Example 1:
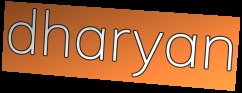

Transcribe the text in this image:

dharyan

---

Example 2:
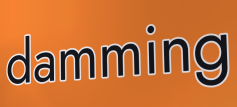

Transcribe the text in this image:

damming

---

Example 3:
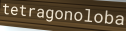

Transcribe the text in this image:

tetragonoloba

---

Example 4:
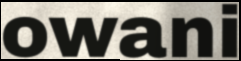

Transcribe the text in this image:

owani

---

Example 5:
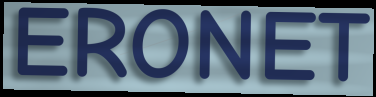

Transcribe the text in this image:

ERONET